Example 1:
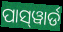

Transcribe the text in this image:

ପାସ୍‌ୱାର୍ଡ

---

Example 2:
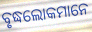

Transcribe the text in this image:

ବୃଦ୍ଧଲୋକମାନେ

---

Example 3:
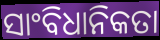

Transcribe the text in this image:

ସାଂବିଧାନିକତା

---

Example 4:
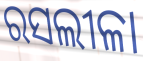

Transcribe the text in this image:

ରସଲୀଳା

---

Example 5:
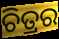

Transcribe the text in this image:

ଚିତ୍ରର